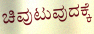
ಚಿವುಟುವುದಕ್ಕೆ